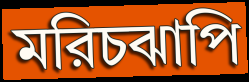
মরিচঝাপি